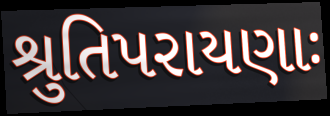
શ્રુતિપરાયણાઃ